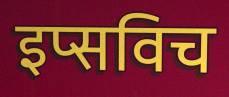
इप्सविच